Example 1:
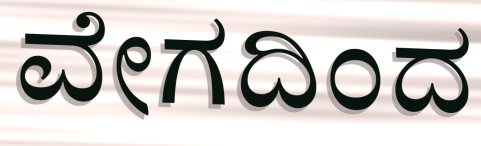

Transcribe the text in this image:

ವೇಗದಿಂದ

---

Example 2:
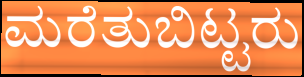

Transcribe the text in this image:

ಮರೆತುಬಿಟ್ಟರು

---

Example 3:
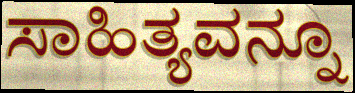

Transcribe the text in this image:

ಸಾಹಿತ್ಯವನ್ನೂ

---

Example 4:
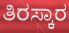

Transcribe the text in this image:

ತಿರಸ್ಕಾರ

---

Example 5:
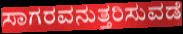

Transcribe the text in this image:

ಸಾಗರವನುತ್ತರಿಸುವಡೆ